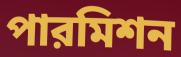
পারমিশন